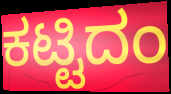
ಕಟ್ಟಿದಂ